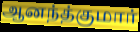
ஆனந்த்குமார்